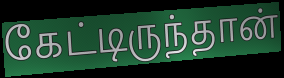
கேட்டிருந்தான்